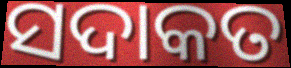
ସଦାକତ